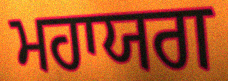
ਮਹਾਯਗ